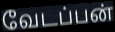
வேடப்பன்